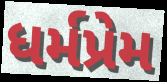
ધર્મપ્રેમ